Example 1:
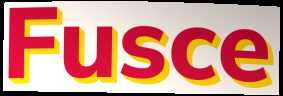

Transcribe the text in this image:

Fusce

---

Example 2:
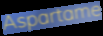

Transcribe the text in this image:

Aspartame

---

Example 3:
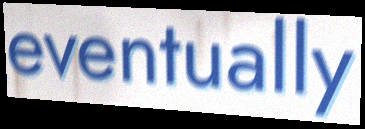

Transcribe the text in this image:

eventually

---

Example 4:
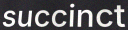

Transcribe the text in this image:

succinct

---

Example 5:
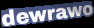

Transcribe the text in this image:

dewrawo